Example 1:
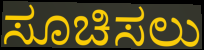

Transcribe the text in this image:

ಸೂಚಿಸಲು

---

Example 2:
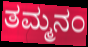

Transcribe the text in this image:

ತಮ್ಮನಂ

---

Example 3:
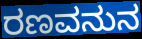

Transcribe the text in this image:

ರಣವನುನ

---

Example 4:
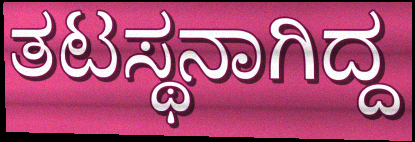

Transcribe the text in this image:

ತಟಸ್ಥನಾಗಿದ್ದ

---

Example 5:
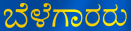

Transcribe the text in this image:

ಬೆಳೆಗಾರರು